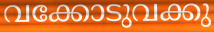
വക്കോടുവക്കു